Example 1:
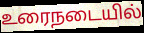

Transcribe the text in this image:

உரைநடையில்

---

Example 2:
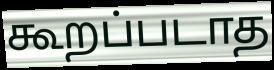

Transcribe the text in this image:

கூறப்படாத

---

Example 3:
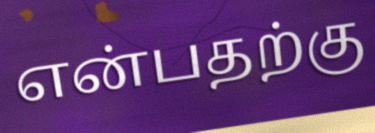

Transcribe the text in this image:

என்பதற்கு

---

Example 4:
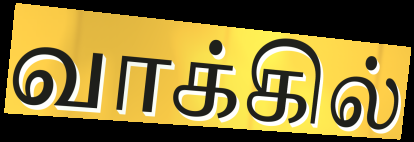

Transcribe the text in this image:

வாக்கில்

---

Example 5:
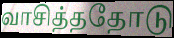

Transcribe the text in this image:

வாசித்ததோடு